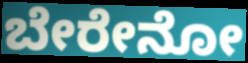
ಬೇರೇನೋ